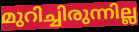
മുറിച്ചിരുന്നില്ല